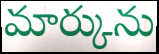
మార్కును